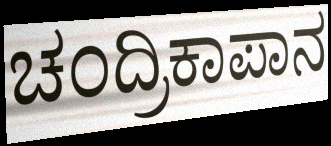
ಚಂದ್ರಿಕಾಪಾನ